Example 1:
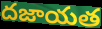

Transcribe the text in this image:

దజాయత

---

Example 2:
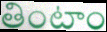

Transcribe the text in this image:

తింటాం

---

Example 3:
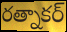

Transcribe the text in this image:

రత్నాకర్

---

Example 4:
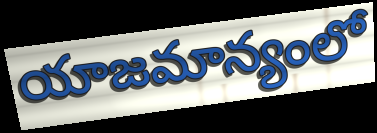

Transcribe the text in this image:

యాజమాన్యంలో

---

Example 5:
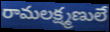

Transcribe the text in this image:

రామలక్ష్మణులే